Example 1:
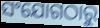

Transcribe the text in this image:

ସଂଯୋଗଠାରୁ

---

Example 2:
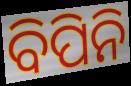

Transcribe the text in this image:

ବିପିନି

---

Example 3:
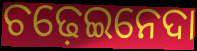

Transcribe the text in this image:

ଚଢ଼େଇନେଦା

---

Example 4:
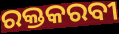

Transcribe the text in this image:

ରକ୍ତକରବୀ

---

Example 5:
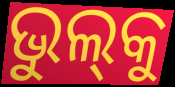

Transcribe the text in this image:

ଭୁଲ୍‍କୁ